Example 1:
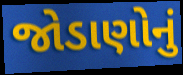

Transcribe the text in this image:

જોડાણોનું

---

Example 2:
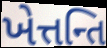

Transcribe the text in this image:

ખેત્તન્તિ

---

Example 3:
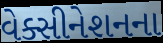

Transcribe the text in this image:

વેક્સીનેશનના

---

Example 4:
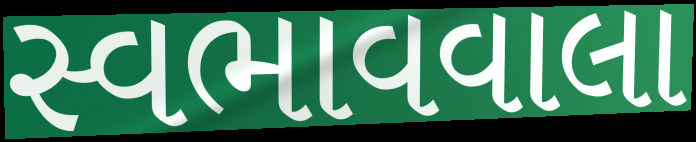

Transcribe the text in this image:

સ્વભાવવાલા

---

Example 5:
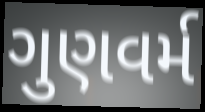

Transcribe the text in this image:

ગુણવર્મ